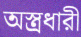
অস্ত্রধারী